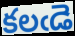
కలఁడె